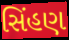
સિંહણ